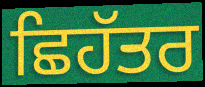
ਛਿਹੱਤਰ